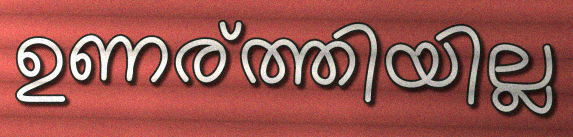
ഉണര്ത്തിയില്ല